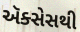
ઍક્સેસથી